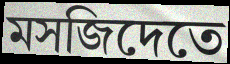
মসজিদেতে